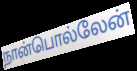
நான்பொல்லேன்